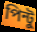
পিন্টু